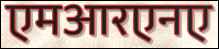
एमआरएनए